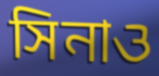
সিনাও